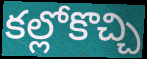
కల్లోకొచ్చి